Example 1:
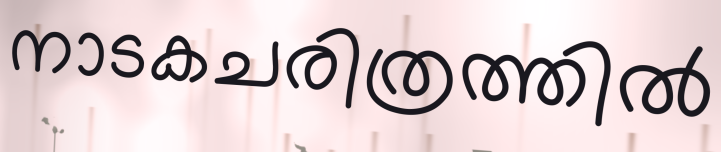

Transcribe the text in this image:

നാടകചരിത്രത്തിൽ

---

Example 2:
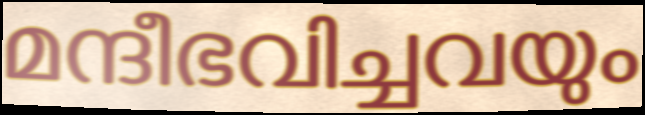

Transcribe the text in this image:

മന്ദീഭവിച്ചവയും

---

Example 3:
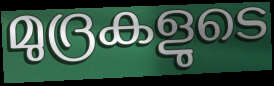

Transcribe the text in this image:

മുദ്രകളുടെ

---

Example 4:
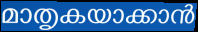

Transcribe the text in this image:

മാതൃകയാക്കാൻ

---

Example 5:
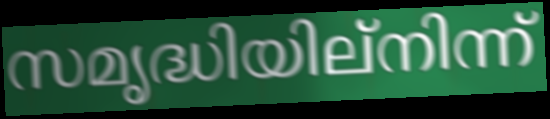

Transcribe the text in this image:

സമൃദ്ധിയില്നിന്ന്